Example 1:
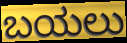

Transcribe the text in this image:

ಬಯಲು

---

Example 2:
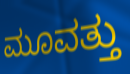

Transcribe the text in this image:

ಮೂವತ್ತು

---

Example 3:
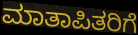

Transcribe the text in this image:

ಮಾತಾಪಿತರಿಗೆ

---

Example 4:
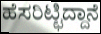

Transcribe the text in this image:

ಹೆಸರಿಟ್ಟಿದ್ದಾನೆ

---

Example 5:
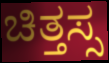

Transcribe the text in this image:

ಚಿತ್ತಸ್ಸ